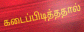
கடைப்பிடித்ததால்